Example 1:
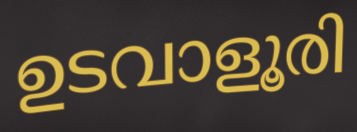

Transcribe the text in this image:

ഉടവാളൂരി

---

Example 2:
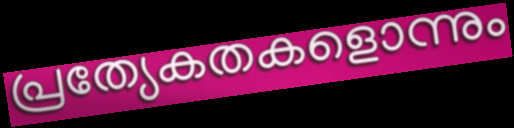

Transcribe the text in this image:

പ്രത്യേകതകളൊന്നും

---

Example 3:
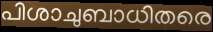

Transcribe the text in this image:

പിശാചുബാധിതരെ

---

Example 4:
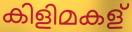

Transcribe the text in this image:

കിളിമകള്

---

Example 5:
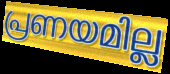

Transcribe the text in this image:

പ്രണയമില്ല